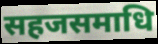
सहजसमाधि